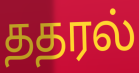
ததரல்